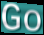
Go